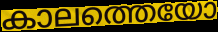
കാലത്തെയോ